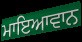
ਮਾਇਆਵਾਨ